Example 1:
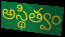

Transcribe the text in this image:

అస్థిత్వం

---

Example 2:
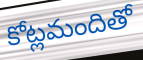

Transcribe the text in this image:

కోట్లమందితో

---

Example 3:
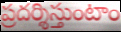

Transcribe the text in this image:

ప్రదర్శిస్తుంటాం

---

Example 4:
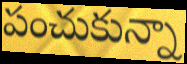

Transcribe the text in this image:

పంచుకున్నా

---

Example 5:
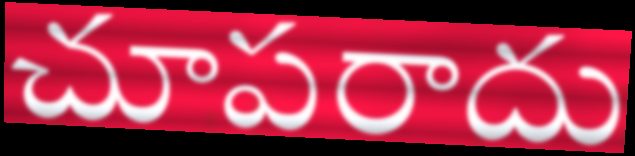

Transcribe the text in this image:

చూపరాదు